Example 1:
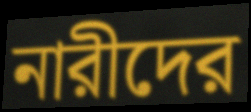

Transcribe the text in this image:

নারীদের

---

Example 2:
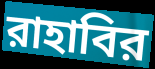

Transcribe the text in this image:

রাহাবির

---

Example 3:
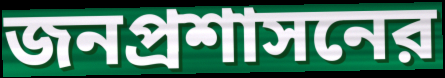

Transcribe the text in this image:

জনপ্রশাসনের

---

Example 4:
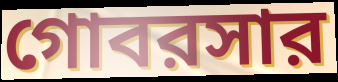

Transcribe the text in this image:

গোবরসার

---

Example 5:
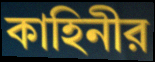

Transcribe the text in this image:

কাহিনীর